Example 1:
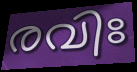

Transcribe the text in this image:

രവിഃ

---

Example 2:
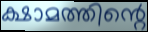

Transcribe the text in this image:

ക്ഷാമത്തിന്റെ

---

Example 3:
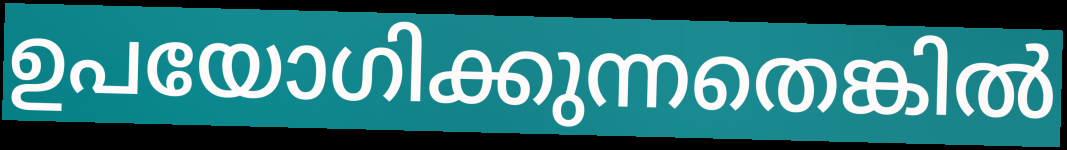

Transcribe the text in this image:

ഉപയോഗിക്കുന്നതെങ്കിൽ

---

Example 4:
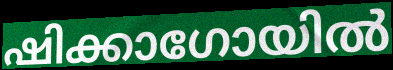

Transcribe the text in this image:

ഷിക്കാഗോയിൽ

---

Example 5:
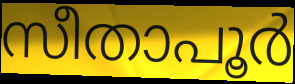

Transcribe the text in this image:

സീതാപൂർ